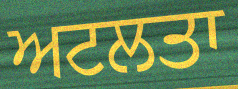
ਅਟਲਤਾ